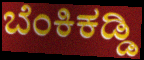
ಬೆಂಕಿಕಡ್ಡಿ